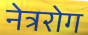
नेत्ररोग